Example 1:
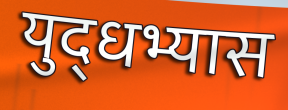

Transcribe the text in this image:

युद्धभ्यास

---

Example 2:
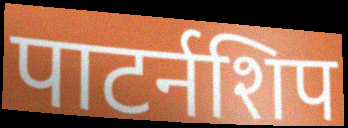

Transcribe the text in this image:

पाटर्नशिप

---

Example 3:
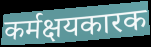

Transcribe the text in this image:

कर्मक्षयकारक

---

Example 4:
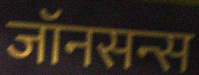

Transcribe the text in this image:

जॉनसन्स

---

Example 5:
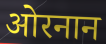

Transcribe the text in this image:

ओरनान